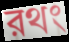
রথং